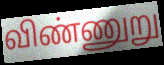
விண்ணுறு